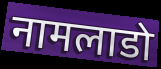
नामलाडो